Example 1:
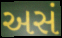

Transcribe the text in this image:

અસં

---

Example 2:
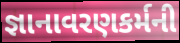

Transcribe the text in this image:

જ્ઞાનાવરણકર્મની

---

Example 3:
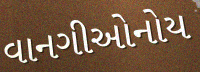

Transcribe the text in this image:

વાનગીઓનોય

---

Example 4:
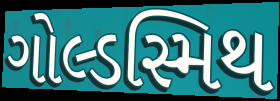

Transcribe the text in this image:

ગોલ્ડસ્મિથ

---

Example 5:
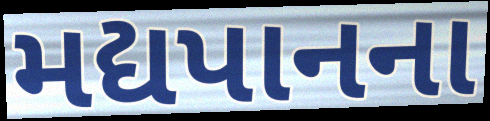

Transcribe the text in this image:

મદ્યપાનના